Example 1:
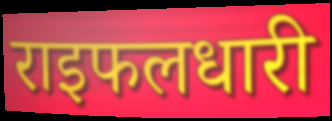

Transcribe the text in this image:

राइफलधारी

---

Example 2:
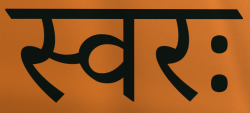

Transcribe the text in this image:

स्वरः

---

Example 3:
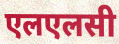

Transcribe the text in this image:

एलएलसी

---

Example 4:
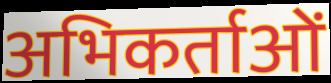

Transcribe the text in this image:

अभिकर्ताओं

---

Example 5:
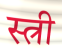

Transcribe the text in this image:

स्त्री